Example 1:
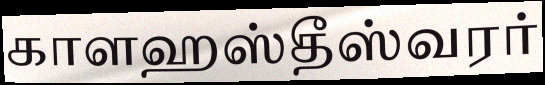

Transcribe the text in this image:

காளஹஸ்தீஸ்வரர்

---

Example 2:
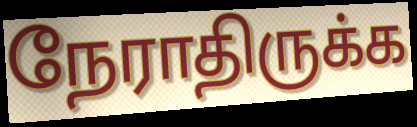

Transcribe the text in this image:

நேராதிருக்க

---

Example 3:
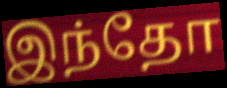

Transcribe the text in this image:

இந்தோ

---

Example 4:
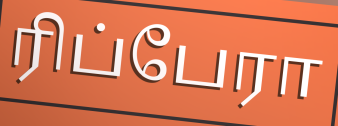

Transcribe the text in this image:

ரிப்பேரா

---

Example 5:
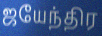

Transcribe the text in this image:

ஜயேந்திர